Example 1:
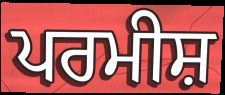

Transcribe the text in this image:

ਪਰਮੀਸ਼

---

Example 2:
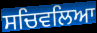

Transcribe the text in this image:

ਸਚਿਵਲਿਆ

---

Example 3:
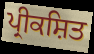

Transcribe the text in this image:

ਪ੍ਰੀਕਸ਼ਿਤ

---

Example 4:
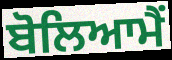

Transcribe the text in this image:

ਬੋਲਿਆਮੈਂ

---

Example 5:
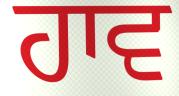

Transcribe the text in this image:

ਹਾਵ